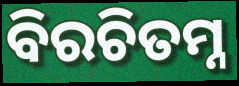
ବିରଚିତମ୍ନ